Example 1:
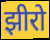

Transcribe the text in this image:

झीरो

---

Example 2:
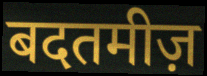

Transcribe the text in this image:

बदतमीज़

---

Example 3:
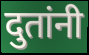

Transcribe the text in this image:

दुतांनी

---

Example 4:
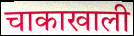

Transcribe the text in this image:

चाकाखाली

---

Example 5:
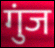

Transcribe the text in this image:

गुंज